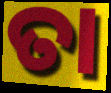
ତା